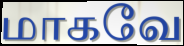
மாகவே